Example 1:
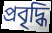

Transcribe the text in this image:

প্রবৃদ্ধি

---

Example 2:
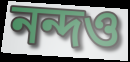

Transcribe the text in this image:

নন্দও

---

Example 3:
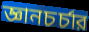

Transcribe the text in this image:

জ্ঞানচর্চার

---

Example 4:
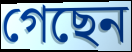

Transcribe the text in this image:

গেছেন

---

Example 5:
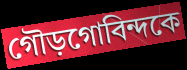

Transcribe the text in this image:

গৌড়গোবিন্দকে